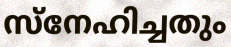
സ്നേഹിച്ചതും